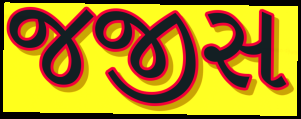
જજીસ